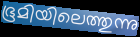
ഭൂമിയിലെത്തുന്നു